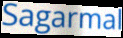
Sagarmal